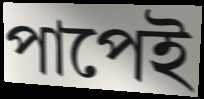
পাপেই